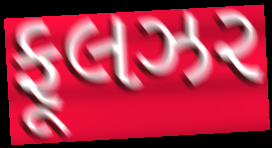
ફૂલઝર